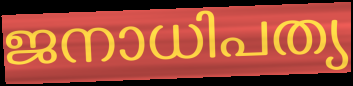
ജനാധിപത്യ